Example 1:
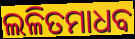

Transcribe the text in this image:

ଲଳିତମାଧବ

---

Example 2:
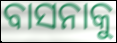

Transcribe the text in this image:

ବାସନାକୁ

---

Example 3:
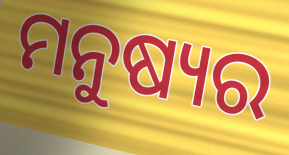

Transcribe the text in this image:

ମନୁଷ୍ୟର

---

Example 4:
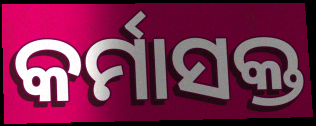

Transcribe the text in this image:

କର୍ମାସକ୍ତ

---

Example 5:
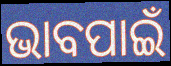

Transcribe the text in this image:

ଭାବପାଇଁ